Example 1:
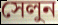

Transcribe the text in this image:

সেলুন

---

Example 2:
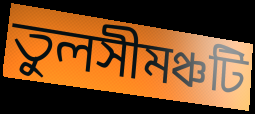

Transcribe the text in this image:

তুলসীমঞ্চটি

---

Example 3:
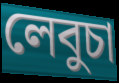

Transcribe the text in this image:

লেবুচা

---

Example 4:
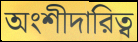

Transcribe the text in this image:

অংশীদারিত্ব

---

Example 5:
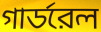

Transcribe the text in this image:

গার্ডরেল